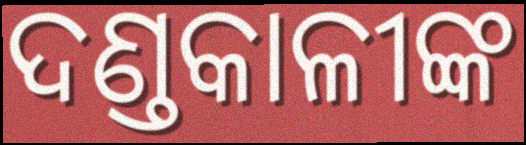
ଦଣ୍ଡକାଳୀଙ୍କ